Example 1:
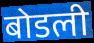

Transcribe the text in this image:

बोडली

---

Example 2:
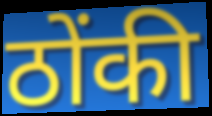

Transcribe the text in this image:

ठोंकी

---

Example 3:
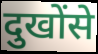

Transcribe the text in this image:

दुखोंसे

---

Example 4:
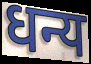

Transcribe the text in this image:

धन्य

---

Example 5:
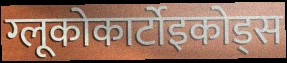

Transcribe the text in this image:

ग्लूकोकार्टोइकोड्स